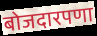
बोजदारपणा